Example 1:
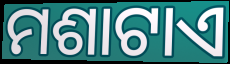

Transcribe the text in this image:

ମଶାଟାଏ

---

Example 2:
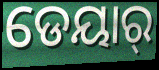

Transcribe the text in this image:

ଡେୟାର୍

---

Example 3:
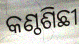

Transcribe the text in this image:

କଣ୍ଠଶିଛୀ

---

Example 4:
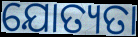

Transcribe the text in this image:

ଯୋତ୍ୟତା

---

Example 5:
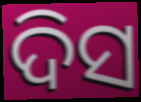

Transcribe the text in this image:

ଦିସ